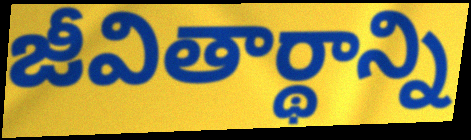
జీవితార్థాన్ని